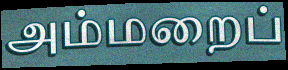
அம்மறைப்